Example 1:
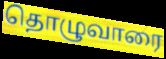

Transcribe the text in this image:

தொழுவாரை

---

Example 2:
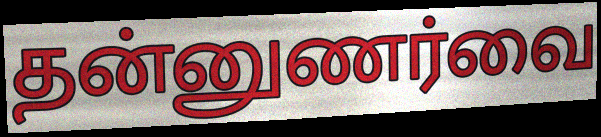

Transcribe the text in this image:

தன்னுணர்வை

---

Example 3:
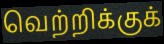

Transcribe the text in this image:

வெற்றிக்குக்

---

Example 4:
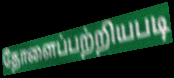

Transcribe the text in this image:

தோளைப்பற்றியபடி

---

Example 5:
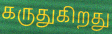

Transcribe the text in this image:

கருதுகிறது